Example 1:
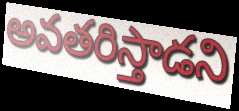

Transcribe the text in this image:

అవతరిస్తాడని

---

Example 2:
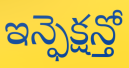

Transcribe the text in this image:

ఇన్ఫెక్షన్తో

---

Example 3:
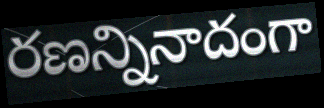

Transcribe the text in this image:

రణన్నినాదంగా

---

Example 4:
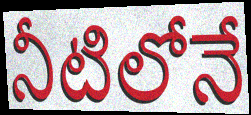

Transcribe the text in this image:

నీటిలోనే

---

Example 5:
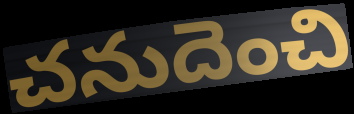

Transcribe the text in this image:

చనుదెంచి